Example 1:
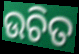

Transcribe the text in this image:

ଉଚିତ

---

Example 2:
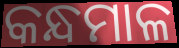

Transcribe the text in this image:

କନ୍ଧମାଳ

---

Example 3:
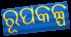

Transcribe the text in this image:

ରୂପକଳ୍ପ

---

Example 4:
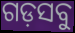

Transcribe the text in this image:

ଗଡ଼ସବୁ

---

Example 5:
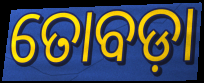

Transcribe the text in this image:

ତୋବଡ଼ା